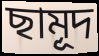
ছামূদ